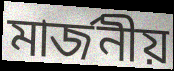
মার্জনীয়